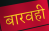
बारवही